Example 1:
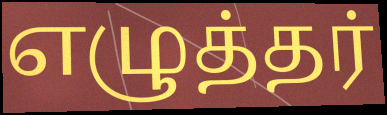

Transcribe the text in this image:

எழுத்தர்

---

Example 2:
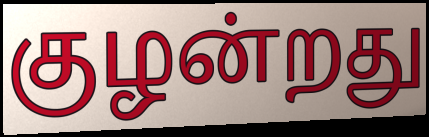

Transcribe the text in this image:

குழன்றது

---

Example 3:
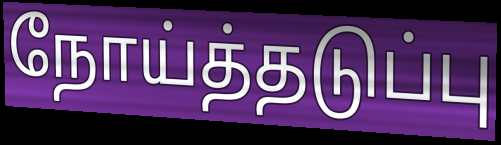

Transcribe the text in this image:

நோய்த்தடுப்பு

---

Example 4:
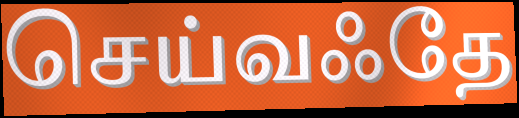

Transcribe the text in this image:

செய்வஃதே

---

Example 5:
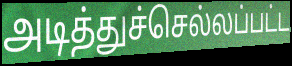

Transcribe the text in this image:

அடித்துச்செல்லப்பட்ட